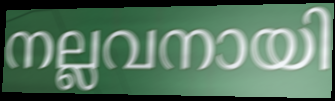
നല്ലവനായി